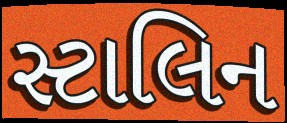
સ્ટાલિન